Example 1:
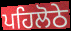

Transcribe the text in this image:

ਪਹਿਲੋਠੇ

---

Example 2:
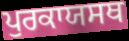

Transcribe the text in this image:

ਪੁਰਕਾਯਸਥ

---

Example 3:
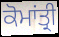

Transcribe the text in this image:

ਕੋਮਾਂਤ੍ਰੀ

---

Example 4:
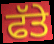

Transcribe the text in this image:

ਫੱਤੇ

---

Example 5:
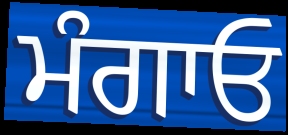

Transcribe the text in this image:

ਮੰਗਾਓ